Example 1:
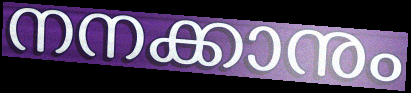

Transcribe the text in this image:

നനക്കാനും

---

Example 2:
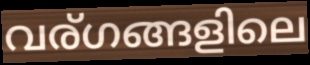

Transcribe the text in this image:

വര്ഗങ്ങളിലെ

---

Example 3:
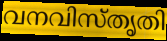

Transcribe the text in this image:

വനവിസ്തൃതി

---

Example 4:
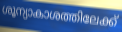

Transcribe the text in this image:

ശൂന്യാകാശത്തിലേക്ക്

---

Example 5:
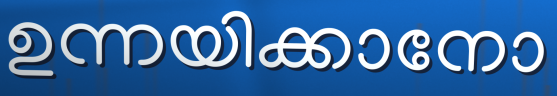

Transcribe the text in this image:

ഉന്നയിക്കാനോ